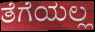
ತೆಗೆಯಲ್ಲ